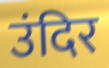
उंदिर